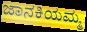
ಜಾನಕಿಯಮ್ಮ